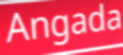
Angada